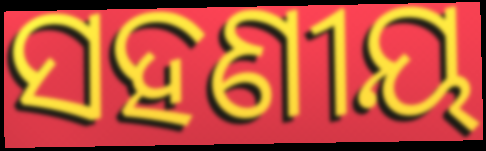
ସହଣୀୟ